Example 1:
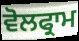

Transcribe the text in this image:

ਵੋਲਫ੍ਰਾਮ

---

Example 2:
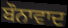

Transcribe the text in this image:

ਬੌਨਾਵਾਦ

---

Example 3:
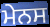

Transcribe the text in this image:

ਮੇਨਸ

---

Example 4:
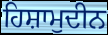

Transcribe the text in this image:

ਹਿਸ਼ਾਮੁਦੀਨ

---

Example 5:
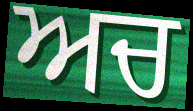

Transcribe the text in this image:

ਅਚ